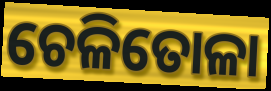
ଚେଳିତୋଳା